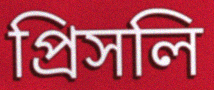
প্রিসলি